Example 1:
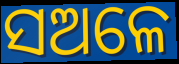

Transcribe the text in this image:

ସଅଳେ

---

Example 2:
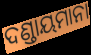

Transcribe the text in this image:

ଦଣ୍ଡାୟମାନା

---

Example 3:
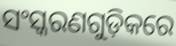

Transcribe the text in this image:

ସଂସ୍କରଣଗୁଡ଼ିକରେ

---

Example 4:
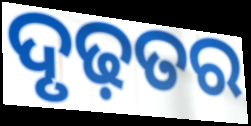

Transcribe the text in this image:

ଦୃଢ଼ତର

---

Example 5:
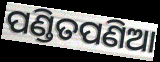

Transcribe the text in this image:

ପଣ୍ଡିତପଣିଆ